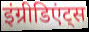
इंग्रीडिएंट्स